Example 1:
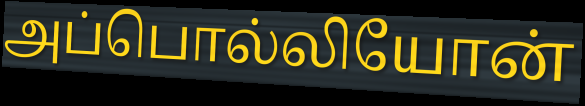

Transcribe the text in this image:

அப்பொல்லியோன்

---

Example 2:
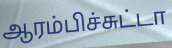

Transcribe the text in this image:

ஆரம்பிச்சுட்டா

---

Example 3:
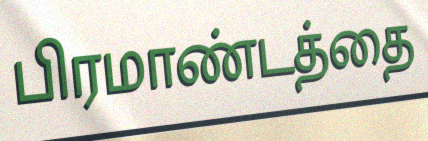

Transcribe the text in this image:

பிரமாண்டத்தை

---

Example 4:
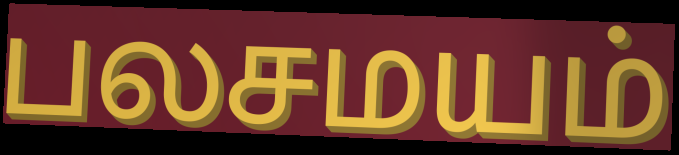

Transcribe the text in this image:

பலசமயம்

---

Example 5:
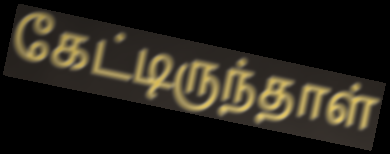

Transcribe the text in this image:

கேட்டிருந்தாள்